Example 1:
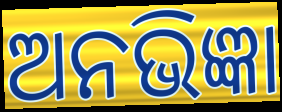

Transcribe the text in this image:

ଅନଭିଜ୍ଞା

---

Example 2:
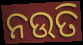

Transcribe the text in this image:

ନଉତି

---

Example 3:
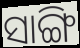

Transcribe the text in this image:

ସାଙ୍ଗି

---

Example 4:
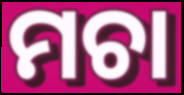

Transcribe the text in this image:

ମଚା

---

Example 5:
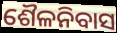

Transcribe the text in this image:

ଶୈଳନିବାସ